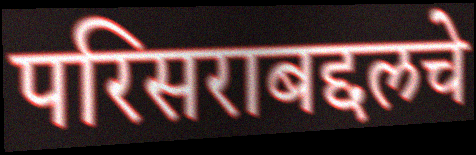
परिसराबद्दलचे